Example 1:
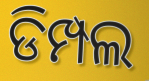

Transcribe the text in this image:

ଡିମ୍ପଲ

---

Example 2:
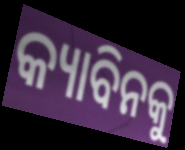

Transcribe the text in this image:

କ୍ୟାବିନକୁ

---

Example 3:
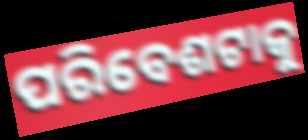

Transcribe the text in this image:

ପରିବେଶଟାକୁ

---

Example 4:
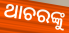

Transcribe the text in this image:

ଥାଚରଙ୍କୁ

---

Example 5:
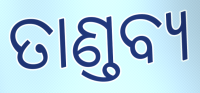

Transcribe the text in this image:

ତାଣ୍ଡବ୍ୟ